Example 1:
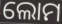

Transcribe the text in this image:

ଲୋମ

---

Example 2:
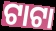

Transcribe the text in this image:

ଟାଟା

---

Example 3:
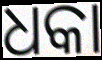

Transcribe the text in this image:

ଧକା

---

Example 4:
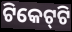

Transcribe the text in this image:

ଟିକେଟ୍‌ଟି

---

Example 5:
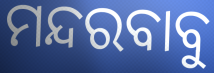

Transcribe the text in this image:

ମନ୍ଦରବାବୁ